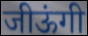
जीऊंगी